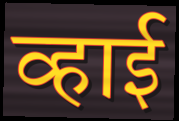
व्हाई